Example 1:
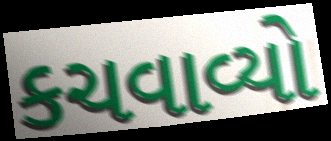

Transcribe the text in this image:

કચવાવ્યો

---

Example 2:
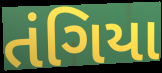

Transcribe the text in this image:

તંગિયા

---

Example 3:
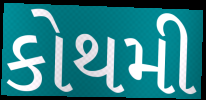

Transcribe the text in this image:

કોથમી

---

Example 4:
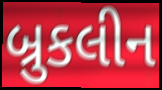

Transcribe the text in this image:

બ્રુકલીન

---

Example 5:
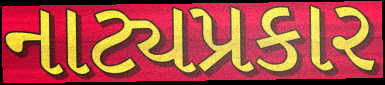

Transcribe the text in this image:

નાટ્યપ્રકાર